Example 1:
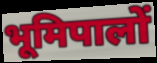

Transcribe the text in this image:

भूमिपालों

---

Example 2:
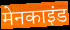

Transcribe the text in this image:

मेनकाइंड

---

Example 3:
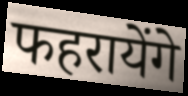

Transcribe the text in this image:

फहरायेंगे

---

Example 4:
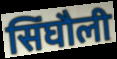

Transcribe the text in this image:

सिंघौली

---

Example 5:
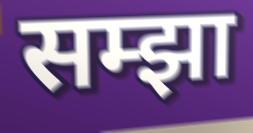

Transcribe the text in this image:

सम्झा